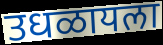
उधळायला